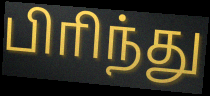
பிரிந்து